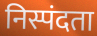
निस्पंदता